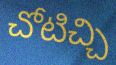
చోటిచ్చి